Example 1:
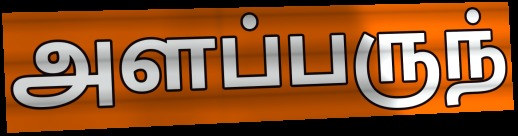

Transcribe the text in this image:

அளப்பருந்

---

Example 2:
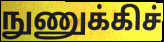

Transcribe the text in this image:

நுணுக்கிச்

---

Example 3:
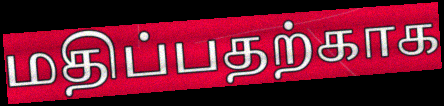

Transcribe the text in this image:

மதிப்பதற்காக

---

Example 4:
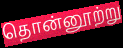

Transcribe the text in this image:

தொன்னூற்று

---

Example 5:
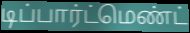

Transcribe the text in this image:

டிப்பார்ட்மெண்ட்